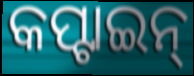
କପ୍ଟାଇନ୍